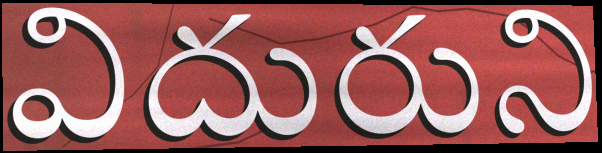
విదురుని